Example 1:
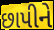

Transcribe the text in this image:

છાપીને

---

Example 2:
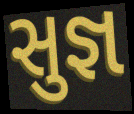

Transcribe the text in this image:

સુજ્ઞ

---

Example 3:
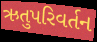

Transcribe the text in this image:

ઋતુપરિવર્તન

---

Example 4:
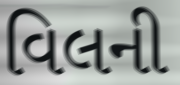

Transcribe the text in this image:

વિલની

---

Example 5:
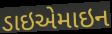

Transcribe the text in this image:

ડાઇએમાઇન